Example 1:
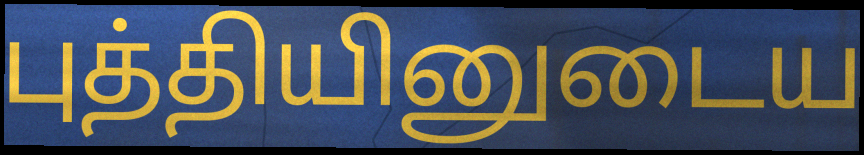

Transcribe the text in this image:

புத்தியினுடைய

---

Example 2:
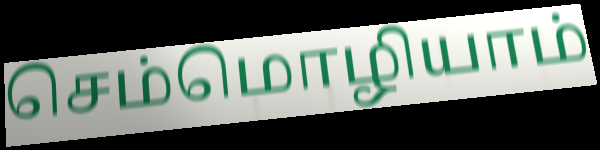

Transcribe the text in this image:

செம்மொழியாம்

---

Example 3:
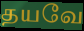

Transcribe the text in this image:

தயவே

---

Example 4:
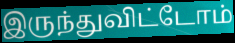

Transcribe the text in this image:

இருந்துவிட்டோம்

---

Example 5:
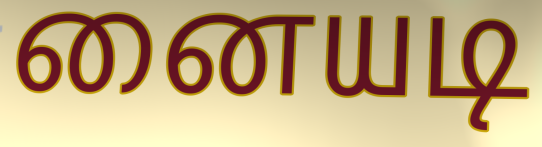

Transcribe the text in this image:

னையடி